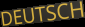
DEUTSCH